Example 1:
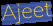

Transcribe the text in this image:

Ajeet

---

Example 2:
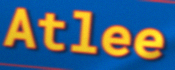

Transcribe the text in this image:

Atlee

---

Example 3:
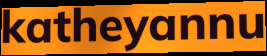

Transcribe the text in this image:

katheyannu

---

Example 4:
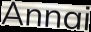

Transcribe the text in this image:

Annai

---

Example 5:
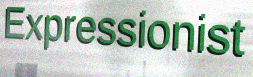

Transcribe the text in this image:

Expressionist